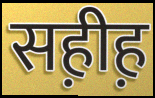
सह़ीह़